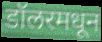
डॉलरमधून